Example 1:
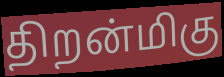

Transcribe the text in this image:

திறன்மிகு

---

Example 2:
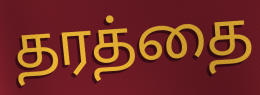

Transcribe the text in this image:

தரத்தை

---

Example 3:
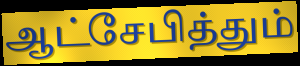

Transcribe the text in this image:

ஆட்சேபித்தும்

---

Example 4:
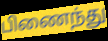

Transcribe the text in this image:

பிணைந்து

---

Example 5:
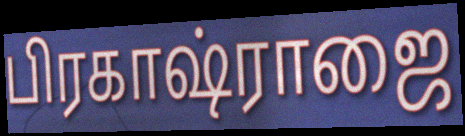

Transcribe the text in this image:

பிரகாஷ்ராஜை